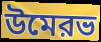
উমেরভ